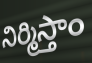
నిర్మిస్తాం